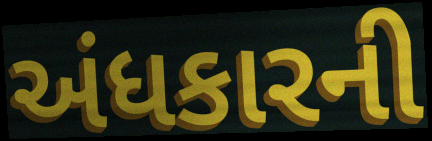
અંધકારની